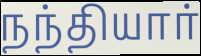
நந்தியார்